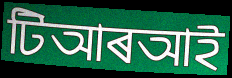
টিআৰআই